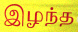
இழந்த